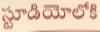
స్టూడియోలోకి